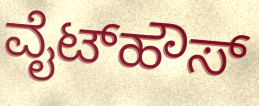
ವೈಟ್‌ಹೌಸ್